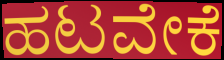
ಹಟವೇಕೆ